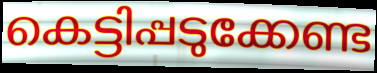
കെട്ടിപ്പടുക്കേണ്ട